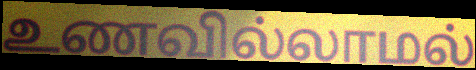
உணவில்லாமல்